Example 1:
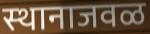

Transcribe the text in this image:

स्थानाजवळ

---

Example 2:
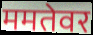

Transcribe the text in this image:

ममतेवर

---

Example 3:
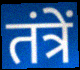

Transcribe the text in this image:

तंत्रें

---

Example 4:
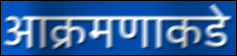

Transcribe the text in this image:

आक्रमणाकडे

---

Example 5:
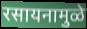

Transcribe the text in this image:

रसायनामुळे